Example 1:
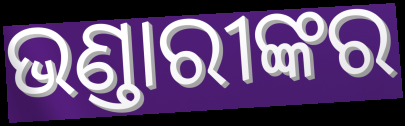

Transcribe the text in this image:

ଭଣ୍ଡାରୀଙ୍କର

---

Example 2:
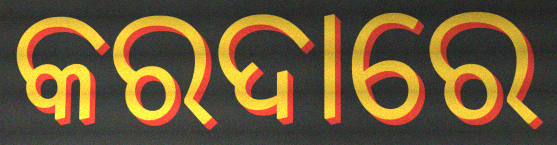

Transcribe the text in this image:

କରଦାରେ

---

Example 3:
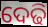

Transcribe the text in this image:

ଦେଢି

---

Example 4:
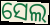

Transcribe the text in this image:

ସେଲ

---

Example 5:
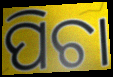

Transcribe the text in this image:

ପିଚା